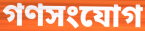
গণসংযোগ